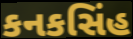
કનકસિંહ